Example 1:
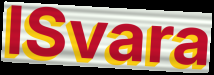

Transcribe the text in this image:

ISvara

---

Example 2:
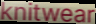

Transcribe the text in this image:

knitwear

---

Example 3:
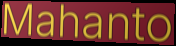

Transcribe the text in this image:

Mahanto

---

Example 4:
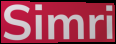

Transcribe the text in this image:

Simri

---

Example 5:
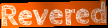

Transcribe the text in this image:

Revered